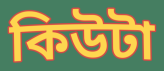
কিউটা